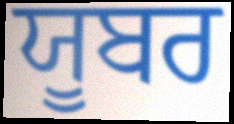
ਯੂਬਰ